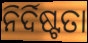
ନିର୍ଦିଷ୍ଟତା